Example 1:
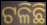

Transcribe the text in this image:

ଟଳିଛି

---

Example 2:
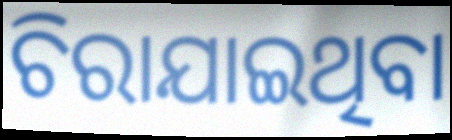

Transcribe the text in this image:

ଚିରାଯାଇଥିବା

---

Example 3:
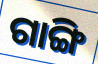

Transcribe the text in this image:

ଗାଙ୍ଗି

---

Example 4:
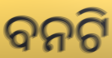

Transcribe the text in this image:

ବନଟି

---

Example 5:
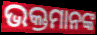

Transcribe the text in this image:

ଭକ୍ତମାନଙ୍କ